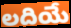
లదియే